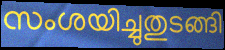
സംശയിച്ചുതുടങ്ങി